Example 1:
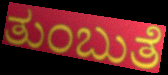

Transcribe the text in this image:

ತುಂಬುತೆ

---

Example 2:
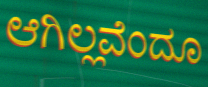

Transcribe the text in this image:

ಆಗಿಲ್ಲವೆಂದೂ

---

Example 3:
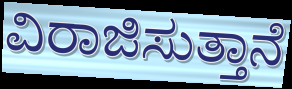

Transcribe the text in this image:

ವಿರಾಜಿಸುತ್ತಾನೆ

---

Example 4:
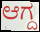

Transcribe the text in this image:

ಆಗ್ದ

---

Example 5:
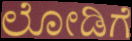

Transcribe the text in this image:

ಲೋಡಿಗೆ